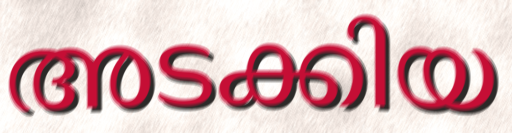
അടക്കിയ